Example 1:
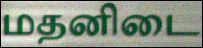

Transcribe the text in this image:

மதனிடை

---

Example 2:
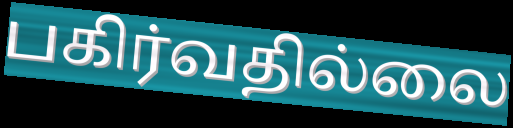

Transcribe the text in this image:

பகிர்வதில்லை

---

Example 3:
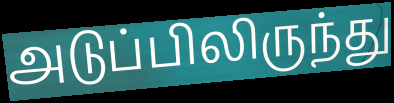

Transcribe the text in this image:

அடுப்பிலிருந்து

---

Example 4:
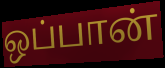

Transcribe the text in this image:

ஒப்பான்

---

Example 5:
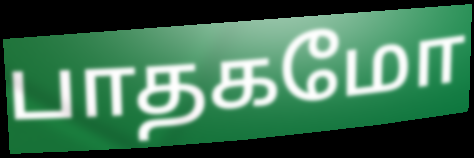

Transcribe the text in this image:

பாதகமோ